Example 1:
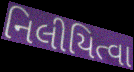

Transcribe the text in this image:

નિલીયિત્વા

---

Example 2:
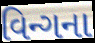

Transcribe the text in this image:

વિન્ગના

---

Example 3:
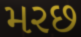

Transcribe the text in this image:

મરછ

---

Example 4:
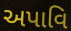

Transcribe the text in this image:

અપાવિ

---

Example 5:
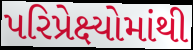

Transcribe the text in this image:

પરિપ્રેક્ષ્યોમાંથી